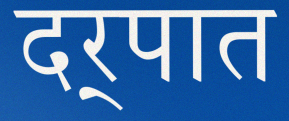
दर्पात